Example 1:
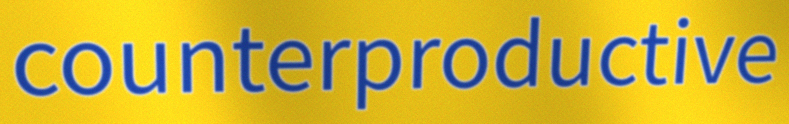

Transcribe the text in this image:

counterproductive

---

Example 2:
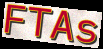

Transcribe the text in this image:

FTAs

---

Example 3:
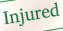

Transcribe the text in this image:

Injured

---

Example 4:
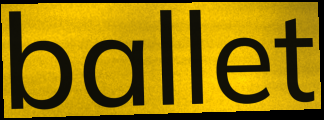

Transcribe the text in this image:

ballet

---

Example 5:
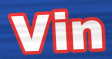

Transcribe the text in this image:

Vin